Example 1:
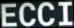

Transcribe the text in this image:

ECCI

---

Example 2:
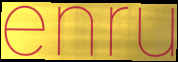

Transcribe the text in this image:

enru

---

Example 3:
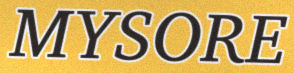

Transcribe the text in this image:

MYSORE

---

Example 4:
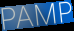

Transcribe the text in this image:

PAMP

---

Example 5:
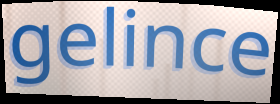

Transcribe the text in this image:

gelince